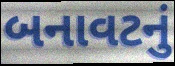
બનાવટનું